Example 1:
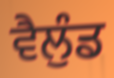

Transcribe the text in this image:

ਵੈਲੁੰਡ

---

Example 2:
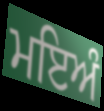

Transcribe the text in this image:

ਮਇਅੰ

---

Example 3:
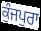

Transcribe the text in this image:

ਕੁੰਜਪੁਰਾ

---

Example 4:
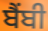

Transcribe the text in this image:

ਬੈਂਬੀ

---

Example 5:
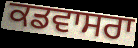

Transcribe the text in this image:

ਕਡਵਾਸਰਾ